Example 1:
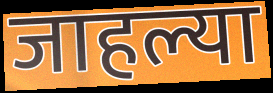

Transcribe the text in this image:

जाहल्या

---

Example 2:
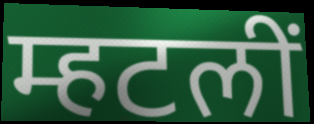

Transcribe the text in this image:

म्हटलीं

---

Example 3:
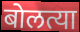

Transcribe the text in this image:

बोलत्या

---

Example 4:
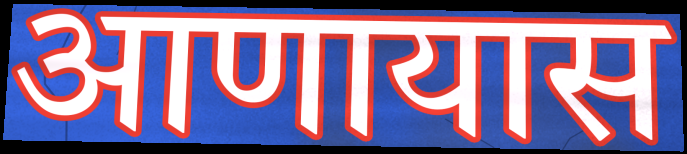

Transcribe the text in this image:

आणायास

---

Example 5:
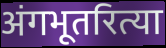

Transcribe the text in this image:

अंगभूतरित्या